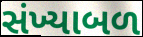
સંખ્યાબળ